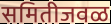
समितीजवळ